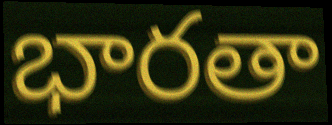
భారతా